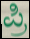
ಪ್ರಿ